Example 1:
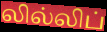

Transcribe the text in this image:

லில்லிப்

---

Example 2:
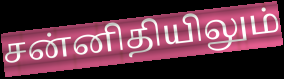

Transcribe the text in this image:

சன்னிதியிலும்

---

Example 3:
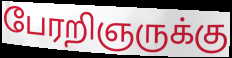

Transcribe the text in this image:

பேரறிஞருக்கு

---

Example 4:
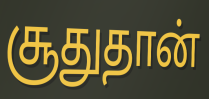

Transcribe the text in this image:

சூதுதான்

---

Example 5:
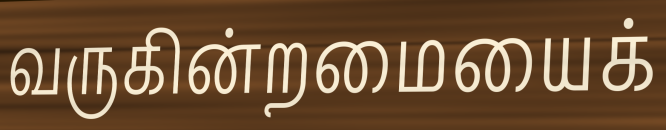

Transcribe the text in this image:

வருகின்றமையைக்